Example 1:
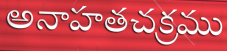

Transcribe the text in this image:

అనాహతచక్రము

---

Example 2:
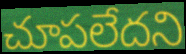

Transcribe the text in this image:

చూపలేదని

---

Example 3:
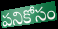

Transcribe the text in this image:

పనికోసం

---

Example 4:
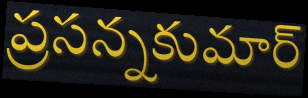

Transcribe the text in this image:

ప్రసన్నకుమార్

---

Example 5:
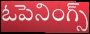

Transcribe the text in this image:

ఓపెనింగ్స్